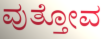
ವುತ್ತೋವ